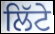
ਲਿੱਟੇ